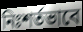
নিঃশর্তভাবে